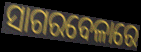
ସାଗରବେଳାରେ